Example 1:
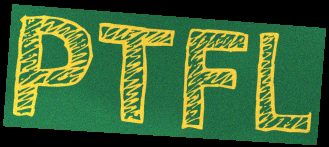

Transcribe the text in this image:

PTFL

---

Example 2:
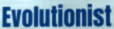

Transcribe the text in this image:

Evolutionist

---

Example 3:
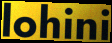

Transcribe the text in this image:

lohini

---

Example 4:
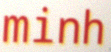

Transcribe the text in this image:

minh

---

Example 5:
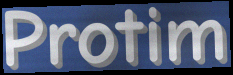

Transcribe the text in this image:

Protim